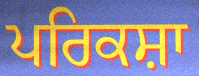
ਪਰਿਕਸ਼ਾ